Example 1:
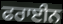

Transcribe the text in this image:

ਫਰਾਈਨ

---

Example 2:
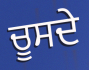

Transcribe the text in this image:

ਚੂਸਦੇ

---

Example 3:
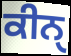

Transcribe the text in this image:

ਕੀਨੑ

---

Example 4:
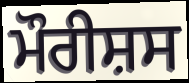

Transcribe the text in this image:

ਮੌਰੀਸ਼ਸ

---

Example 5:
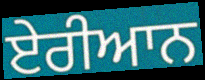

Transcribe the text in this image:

ਏਰੀਆਨ